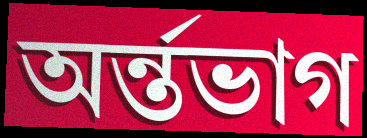
অৰ্ন্তভাগ